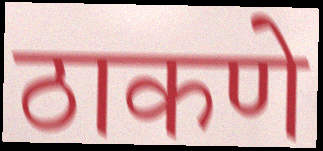
ठाकणे